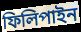
ফিলিপাইন